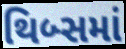
થિબ્સમાં